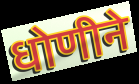
धोणीने